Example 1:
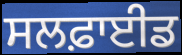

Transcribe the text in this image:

ਸਲਫ਼ਾਈਡ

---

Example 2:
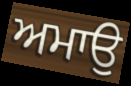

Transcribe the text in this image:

ਅਮਾਉ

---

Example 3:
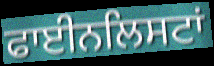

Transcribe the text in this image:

ਫਾਈਨਲਿਸਟਾਂ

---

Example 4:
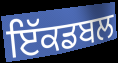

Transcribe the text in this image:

ਇੱਕਡਬਲ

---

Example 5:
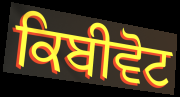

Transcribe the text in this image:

ਕਿਬੀਵੋਟ